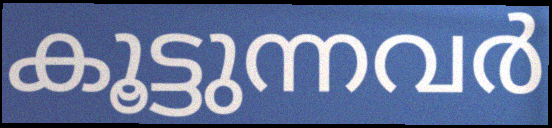
കൂട്ടുന്നവർ